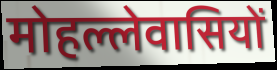
मोहल्लेवासियों